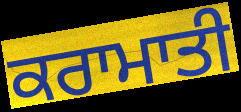
ਕਰਾਮਾਤੀ